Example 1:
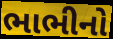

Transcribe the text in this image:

ભાભીનો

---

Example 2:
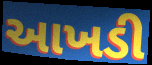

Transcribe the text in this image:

આખડી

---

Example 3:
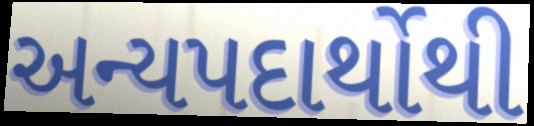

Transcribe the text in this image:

અન્યપદાર્થોથી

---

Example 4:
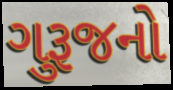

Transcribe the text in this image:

ગુરૂજનો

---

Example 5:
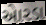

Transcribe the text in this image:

એારડા